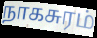
நாகசுரம்